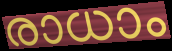
രാധാം